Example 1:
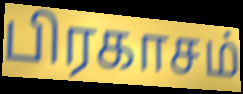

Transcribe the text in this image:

பிரகாசம்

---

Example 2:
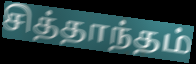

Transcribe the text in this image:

சித்தாந்தம்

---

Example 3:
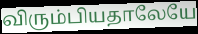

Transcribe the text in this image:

விரும்பியதாலேயே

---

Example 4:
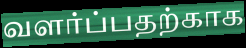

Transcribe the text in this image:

வளர்ப்பதற்காக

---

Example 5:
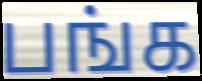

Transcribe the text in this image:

பங்க